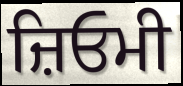
ਜ਼ਿਓਮੀ